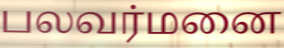
பலவர்மனை